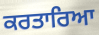
ਕਰਤਾਰਿਆ